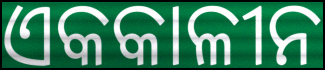
ଏକକାଳୀନ